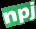
npj